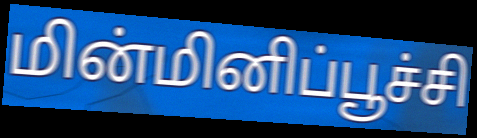
மின்மினிப்பூச்சி